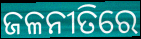
ଜଳନୀତିରେ